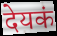
देयकं